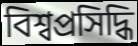
বিশ্বপ্ৰসিদ্ধি